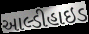
આલ્ડીહાઇડ